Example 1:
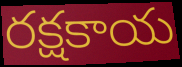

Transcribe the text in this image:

రక్షకాయ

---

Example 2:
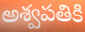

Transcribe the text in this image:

అశ్వపతికి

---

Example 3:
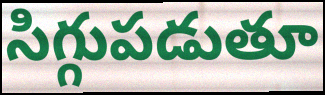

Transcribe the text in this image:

సిగ్గుపడుతూ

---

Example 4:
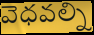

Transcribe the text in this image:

వెధవల్ని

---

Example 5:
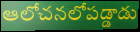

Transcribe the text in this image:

ఆలోచనలోపడ్డాడు